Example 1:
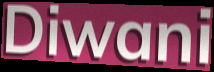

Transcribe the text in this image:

Diwani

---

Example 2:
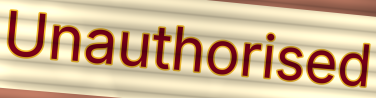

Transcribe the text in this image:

Unauthorised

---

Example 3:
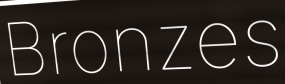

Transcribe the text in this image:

Bronzes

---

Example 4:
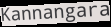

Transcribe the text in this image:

Kannangara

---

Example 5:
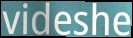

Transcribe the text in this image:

videshe